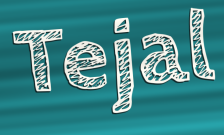
Tejal